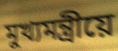
মুখ্যমন্ত্ৰীয়ে